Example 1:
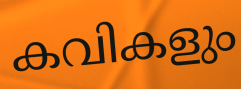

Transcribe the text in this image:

കവികളും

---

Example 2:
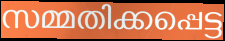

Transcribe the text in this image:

സമ്മതിക്കപ്പെട്ട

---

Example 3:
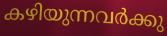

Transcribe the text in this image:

കഴിയുന്നവർക്കു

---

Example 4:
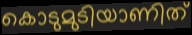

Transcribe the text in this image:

കൊടുമുടിയാണിത്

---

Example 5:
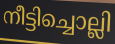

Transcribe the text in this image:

നീട്ടിച്ചൊല്ലി